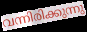
വന്നിരിക്കുന്നു